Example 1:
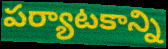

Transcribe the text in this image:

పర్యాటకాన్ని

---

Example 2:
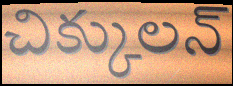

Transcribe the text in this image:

చిక్కులన్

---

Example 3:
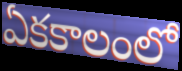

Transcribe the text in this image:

ఏకకాలంలో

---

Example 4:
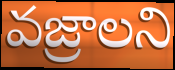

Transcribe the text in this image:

వజ్రాలని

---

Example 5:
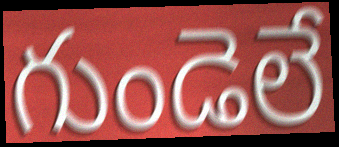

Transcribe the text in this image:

గుండెలే